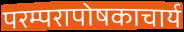
परम्परापोषकाचार्य